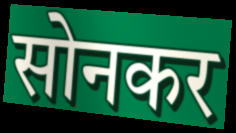
सोनकर